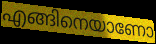
എങ്ങിനെയാണോ